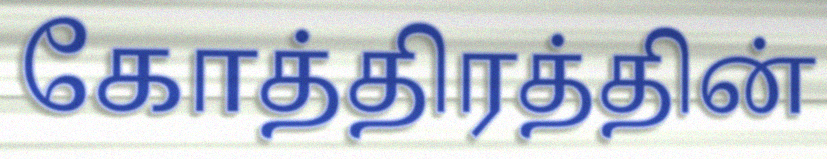
கோத்திரத்தின்